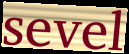
sevel